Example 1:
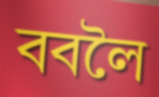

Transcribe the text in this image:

ববলৈ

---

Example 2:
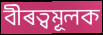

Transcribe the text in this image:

বীৰত্বমূলক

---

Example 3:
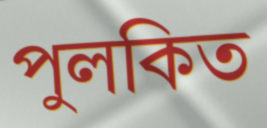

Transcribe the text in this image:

পুলকিত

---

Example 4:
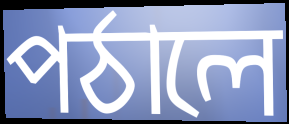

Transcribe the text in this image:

পঠালে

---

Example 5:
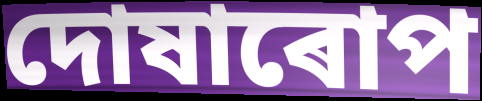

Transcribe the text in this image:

দোষাৰোপ